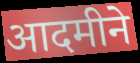
आदमीने